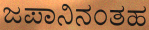
ಜಪಾನಿನಂತಹ